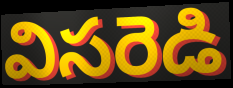
విసరెడి